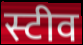
स्टीव